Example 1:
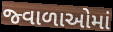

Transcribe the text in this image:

જ્વાળાઓમાં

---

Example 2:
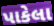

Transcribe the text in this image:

પાકેલા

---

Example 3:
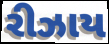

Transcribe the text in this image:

રીઝાય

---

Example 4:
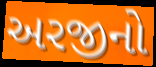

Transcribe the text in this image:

અરજીનો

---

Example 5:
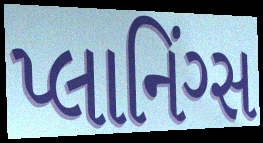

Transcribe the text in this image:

પ્લાનિંગ્સ